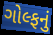
ગોલ્ફનું